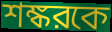
শঙ্করকে